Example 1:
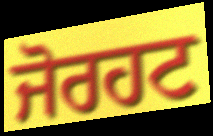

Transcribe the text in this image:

ਜੋਰਹਟ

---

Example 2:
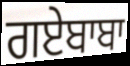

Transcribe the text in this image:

ਗਏਬਾਬਾ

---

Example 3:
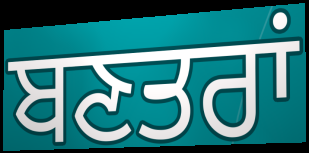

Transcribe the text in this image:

ਬਣਤਰਾਂ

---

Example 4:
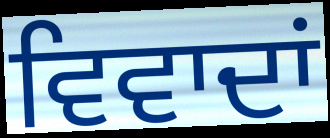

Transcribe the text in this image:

ਵਿਵਾਦਾਂ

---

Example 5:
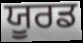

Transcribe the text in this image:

ਯੂਰਡ